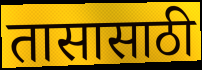
तासासाठी